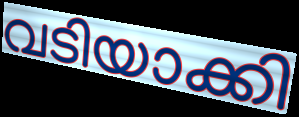
വടിയാക്കി